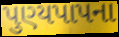
પુણ્યપાપના